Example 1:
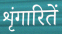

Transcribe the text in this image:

शृंगारितें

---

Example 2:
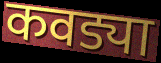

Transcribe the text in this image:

कवड्या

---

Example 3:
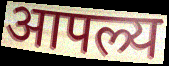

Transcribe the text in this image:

आपल्य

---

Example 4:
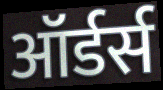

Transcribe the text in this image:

ऑर्डर्स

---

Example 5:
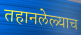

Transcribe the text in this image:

तहानलेल्याच